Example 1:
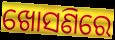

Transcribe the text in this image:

ଖୋସଣିରେ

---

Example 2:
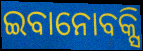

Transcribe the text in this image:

ଇବାନୋବକ୍ସି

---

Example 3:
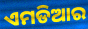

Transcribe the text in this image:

ଏମଡିଆର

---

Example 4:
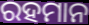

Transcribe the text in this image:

ରହମାନ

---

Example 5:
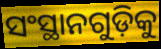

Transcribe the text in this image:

ସଂସ୍ଥାନଗୁଡ଼ିକୁ